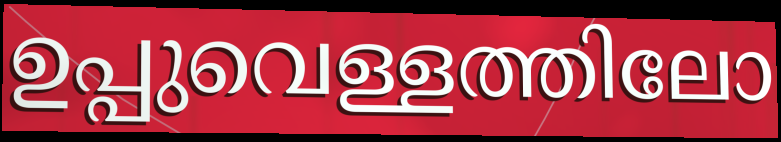
ഉപ്പുവെള്ളത്തിലോ